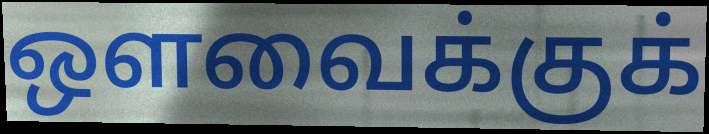
ஔவைக்குக்